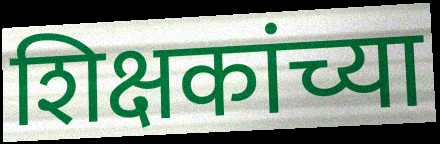
शिक्षकांच्‍या